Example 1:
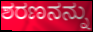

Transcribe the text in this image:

ಶರಣನನ್ನು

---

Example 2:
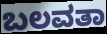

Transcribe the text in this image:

ಬಲವತಾ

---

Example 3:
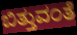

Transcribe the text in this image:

ಬಿತ್ತುವಂತೆ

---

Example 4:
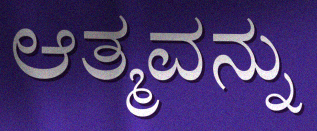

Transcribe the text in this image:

ಆತ್ಮವನ್ನು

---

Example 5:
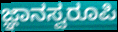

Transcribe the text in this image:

ಜ್ಞಾನಸ್ವರೂಪಿ